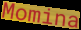
Momina